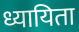
ध्यायिता